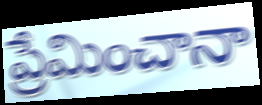
ప్రేమించానా